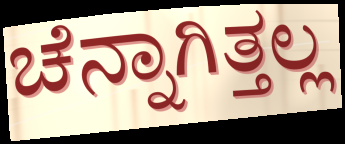
ಚೆನ್ನಾಗಿತ್ತಲ್ಲ